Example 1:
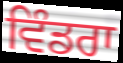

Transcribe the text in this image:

ਵਿੰਡਰਾ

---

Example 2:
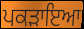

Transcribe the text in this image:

ਪਕੜਾਇਆ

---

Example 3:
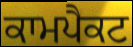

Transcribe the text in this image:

ਕਾਮਪੈਕਟ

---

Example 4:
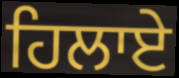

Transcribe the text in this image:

ਹਿਲਾਏ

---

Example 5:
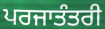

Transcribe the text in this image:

ਪਰਜਾਤੰਤਰੀ